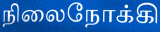
நிலைநோக்கி